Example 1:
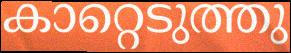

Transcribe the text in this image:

കാറ്റെടുത്തു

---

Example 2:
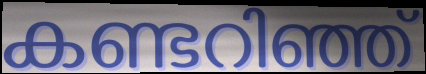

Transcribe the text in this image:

കണ്ടറിഞ്ഞ്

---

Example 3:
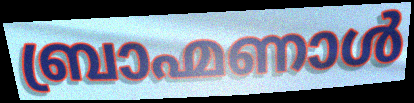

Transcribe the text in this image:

ബ്രാഹ്മണാൾ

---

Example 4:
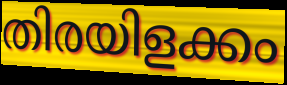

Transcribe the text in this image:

തിരയിളക്കം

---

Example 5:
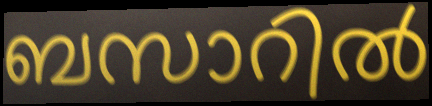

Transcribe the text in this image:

ബസാറിൽ